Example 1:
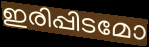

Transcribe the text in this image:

ഇരിപ്പിടമോ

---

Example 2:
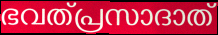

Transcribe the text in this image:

ഭവത്പ്രസാദാത്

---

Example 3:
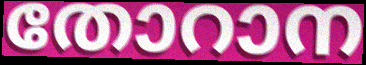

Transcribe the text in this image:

തോറാന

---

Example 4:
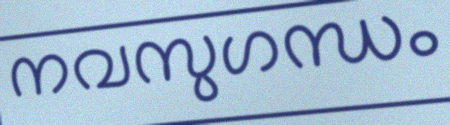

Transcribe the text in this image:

നവസുഗന്ധം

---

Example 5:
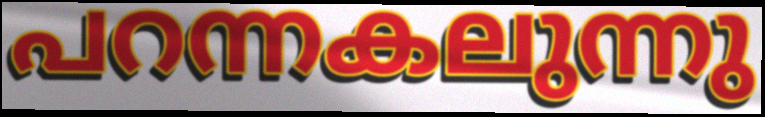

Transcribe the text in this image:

പറന്നകലുന്നു